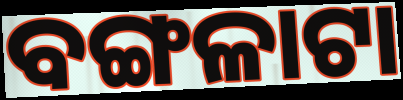
ବଙ୍ଗଳାଟା